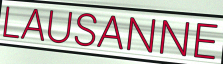
LAUSANNE